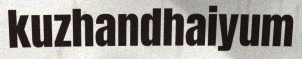
kuzhandhaiyum